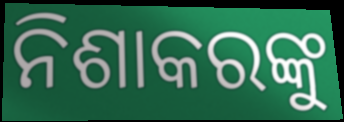
ନିଶାକରଙ୍କୁ